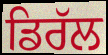
ਡਿਰੱਲ